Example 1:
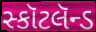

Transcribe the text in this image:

સ્કૉટલૅન્ડ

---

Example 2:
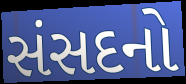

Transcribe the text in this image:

સંસદનો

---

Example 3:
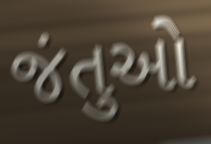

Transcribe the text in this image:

જંતુઓ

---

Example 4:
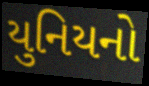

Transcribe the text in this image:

યુનિયનો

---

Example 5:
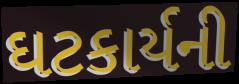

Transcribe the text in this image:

ઘટકાર્યની